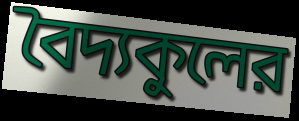
বৈদ্যকুলের